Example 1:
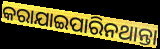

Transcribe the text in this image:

କରାଯାଇପାରିନଥାନ୍ତା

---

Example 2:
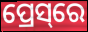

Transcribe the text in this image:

ପ୍ରେସ୍‌ରେ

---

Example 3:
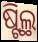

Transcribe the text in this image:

ଷ୍ଟିଲ୍ଥ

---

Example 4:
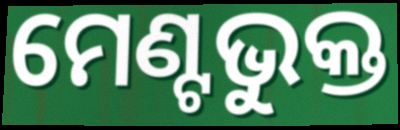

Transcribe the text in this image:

ମେଣ୍ଟଭୁକ୍ତ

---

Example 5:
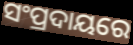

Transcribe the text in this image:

ସଂପ୍ରଦାୟରେ